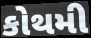
કોથમી